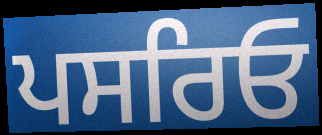
ਪਸਰਿਓ